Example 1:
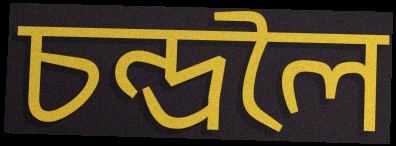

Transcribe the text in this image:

চন্দ্ৰলৈ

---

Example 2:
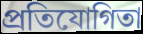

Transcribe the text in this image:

প্ৰতিযোগিতা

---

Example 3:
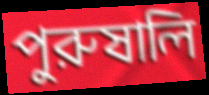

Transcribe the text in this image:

পুৰুষালি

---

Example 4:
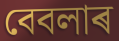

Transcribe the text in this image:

বেবলাৰ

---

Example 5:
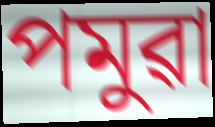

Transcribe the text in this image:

পমুৱা